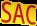
SAC